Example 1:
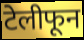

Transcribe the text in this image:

टेलीफून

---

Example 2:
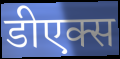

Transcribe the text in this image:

डीएक्स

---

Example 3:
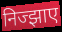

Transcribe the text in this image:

निज्झाए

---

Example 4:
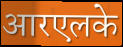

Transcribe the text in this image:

आरएलके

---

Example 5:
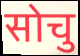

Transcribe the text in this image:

सोचु